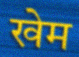
खेम